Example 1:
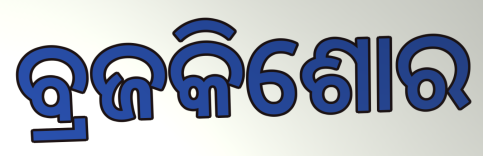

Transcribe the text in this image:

ବ୍ରଜକିଶୋର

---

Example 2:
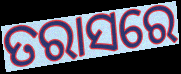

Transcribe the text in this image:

ତରାସରେ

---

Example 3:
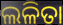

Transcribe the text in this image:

ଲଳିତା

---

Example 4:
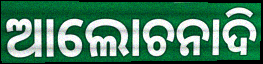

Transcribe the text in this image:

ଆଲୋଚନାଦି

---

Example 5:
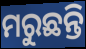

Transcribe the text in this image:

ମରୁଛନ୍ତି